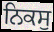
ਨਿਕਸੁ